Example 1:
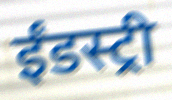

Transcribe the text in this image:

ईंडस्ट्री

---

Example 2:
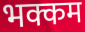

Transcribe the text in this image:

भक्कम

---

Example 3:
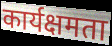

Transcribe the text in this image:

कार्यक्षमता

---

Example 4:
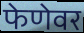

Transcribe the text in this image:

फेणेवर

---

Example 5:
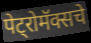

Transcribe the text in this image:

पेट्रोमॅक्सचे